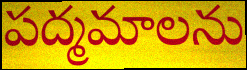
పద్మమాలను